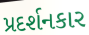
પ્રદર્શનકાર